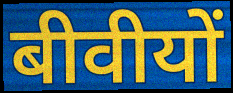
बीवीयों